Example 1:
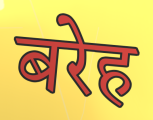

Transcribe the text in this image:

बरेह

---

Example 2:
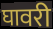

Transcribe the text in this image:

घावरी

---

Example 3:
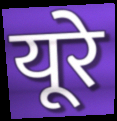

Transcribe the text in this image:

यूरे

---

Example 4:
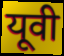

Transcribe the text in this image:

यूवी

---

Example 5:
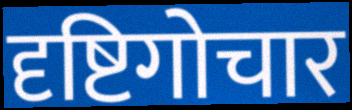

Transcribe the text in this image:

दृष्टिगोचार